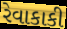
રેવાકાકી